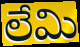
లేమి